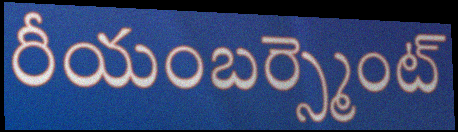
రీయంబర్స్మెంట్